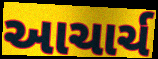
આચાર્ચ